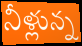
నీళ్లున్న